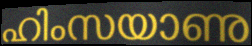
ഹിംസയാണു